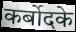
कर्बोदके